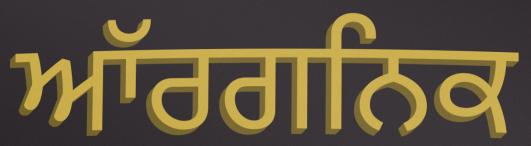
ਆੱਰਗਨਿਕ